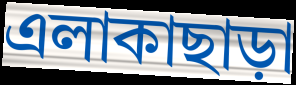
এলাকাছাড়া